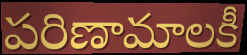
పరిణామాలకీ